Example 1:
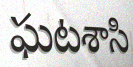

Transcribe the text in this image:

ఘటశాసి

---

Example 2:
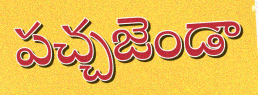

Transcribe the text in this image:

పచ్చజెండా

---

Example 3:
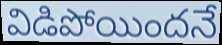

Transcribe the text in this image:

విడిపోయిందనే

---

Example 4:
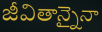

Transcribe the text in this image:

జీవితాన్నైనా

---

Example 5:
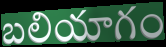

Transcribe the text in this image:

బలియాగం